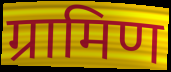
ग्रामिण